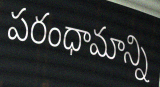
పరంధామాన్ని